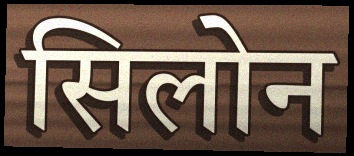
सिलोन